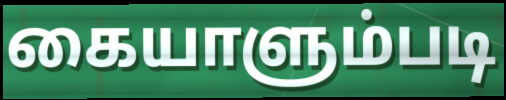
கையாளும்படி